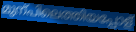
മുന്പിലെത്തിയപ്പോള്